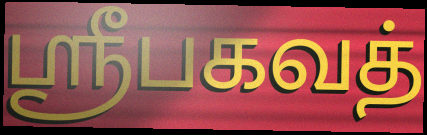
ஸ்ரீபகவத்